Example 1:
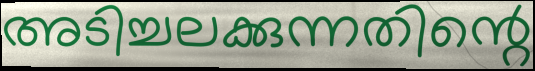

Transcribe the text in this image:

അടിച്ചലക്കുന്നതിന്റെ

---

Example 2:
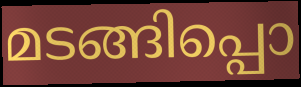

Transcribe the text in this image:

മടങ്ങിപ്പൊ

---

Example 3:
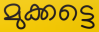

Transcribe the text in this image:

മുക്കട്ടെ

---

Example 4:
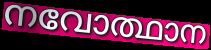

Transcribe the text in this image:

നവോത്ഥാന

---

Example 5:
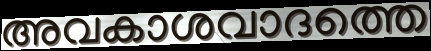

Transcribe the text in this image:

അവകാശവാദത്തെ